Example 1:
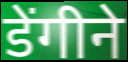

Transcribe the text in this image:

डेंगीने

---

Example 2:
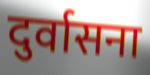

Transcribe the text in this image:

दुर्वासना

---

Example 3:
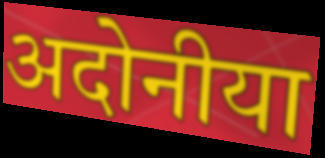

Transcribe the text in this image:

अदोनीया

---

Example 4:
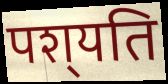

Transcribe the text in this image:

पश्यति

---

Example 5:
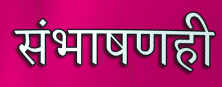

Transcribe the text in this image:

संभाषणही